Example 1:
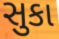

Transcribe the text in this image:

સુકા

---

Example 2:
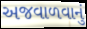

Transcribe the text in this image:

અજવાળવાનું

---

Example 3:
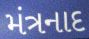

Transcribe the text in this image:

મંત્રનાદ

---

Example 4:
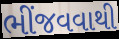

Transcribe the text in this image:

ભીંજવવાથી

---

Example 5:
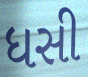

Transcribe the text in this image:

ધસી